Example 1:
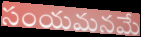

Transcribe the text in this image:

సంయమనమే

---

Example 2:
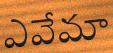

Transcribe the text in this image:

ఎవేమా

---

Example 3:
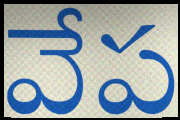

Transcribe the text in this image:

వేప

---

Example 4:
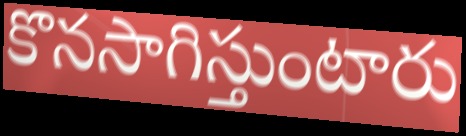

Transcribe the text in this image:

కొనసాగిస్తుంటారు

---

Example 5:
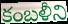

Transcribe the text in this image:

కంబళీని